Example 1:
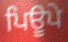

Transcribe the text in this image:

ਪਿਊਪੇ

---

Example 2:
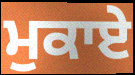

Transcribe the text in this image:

ਮੁਕਾਏ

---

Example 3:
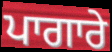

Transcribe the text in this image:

ਪਾਗਾਰੇ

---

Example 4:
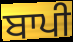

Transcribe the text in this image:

ਬਾਪੀ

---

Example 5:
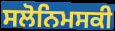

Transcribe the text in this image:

ਸਲੋਨਿਮਸਕੀ